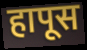
हापूस